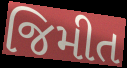
જિમીત